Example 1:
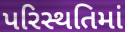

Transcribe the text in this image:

પરિસ્થતિમાં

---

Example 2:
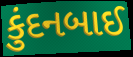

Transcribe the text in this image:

કુંદનબાઈ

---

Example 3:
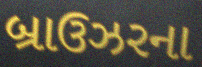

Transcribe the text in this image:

બ્રાઉઝરના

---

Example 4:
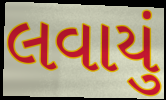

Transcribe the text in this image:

લવાયું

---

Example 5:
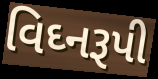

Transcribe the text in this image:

વિઘ્નરૂપી